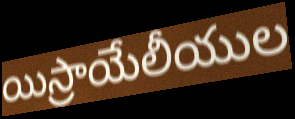
యిస్రాయేలీయుల